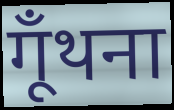
गूँथना